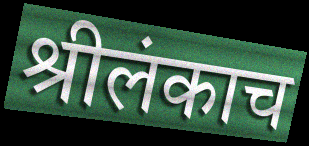
श्रीलंकाच